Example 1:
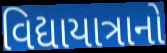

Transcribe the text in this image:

વિદ્યાયાત્રાનો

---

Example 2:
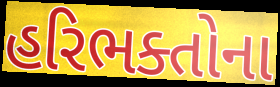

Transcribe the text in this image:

હરિભક્તોના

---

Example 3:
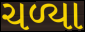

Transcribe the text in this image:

ચળ્યા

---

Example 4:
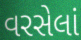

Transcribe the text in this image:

વરસેલાં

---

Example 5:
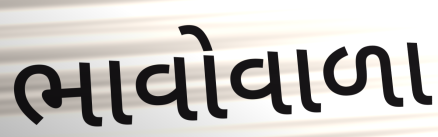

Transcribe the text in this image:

ભાવોવાળા